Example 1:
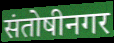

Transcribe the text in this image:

संतोषीनगर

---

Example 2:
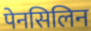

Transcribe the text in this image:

पेनसिलिन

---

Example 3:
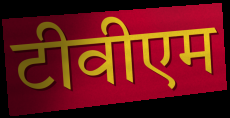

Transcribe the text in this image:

टीवीएम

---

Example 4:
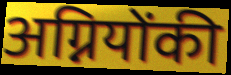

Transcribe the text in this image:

अग्नियोंकी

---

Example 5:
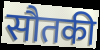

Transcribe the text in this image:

सौतकी